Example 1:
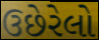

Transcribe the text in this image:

ઉછેરેલો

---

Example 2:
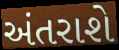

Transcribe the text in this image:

અંતરાશે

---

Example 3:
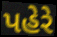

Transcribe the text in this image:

પહેરે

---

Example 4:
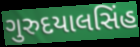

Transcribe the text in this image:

ગુરુદયાલસિંહ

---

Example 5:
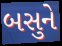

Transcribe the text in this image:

બસુને